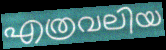
എത്രവലിയ